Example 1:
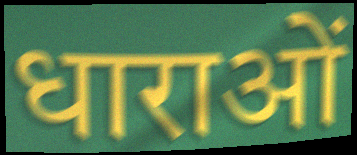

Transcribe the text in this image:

धाराओं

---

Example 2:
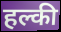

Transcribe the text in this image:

हल्की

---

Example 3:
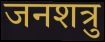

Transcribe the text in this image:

जनशत्रु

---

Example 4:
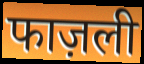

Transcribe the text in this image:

फाज़ली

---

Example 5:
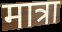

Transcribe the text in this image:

मात्रा